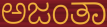
ಅಜಂತಾ